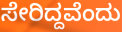
ಸೇರಿದ್ದವೆಂದು